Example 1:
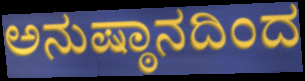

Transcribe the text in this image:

ಅನುಷ್ಠಾನದಿಂದ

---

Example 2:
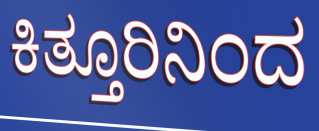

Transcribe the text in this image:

ಕಿತ್ತೂರಿನಿಂದ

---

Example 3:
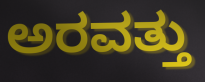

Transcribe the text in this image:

ಅರವತ್ತು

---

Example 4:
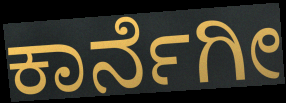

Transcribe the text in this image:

ಕಾರ್ನೆಗೀ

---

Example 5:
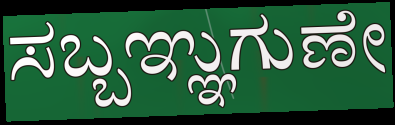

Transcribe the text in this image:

ಸಬ್ಬಞ್ಞುಗುಣೇ